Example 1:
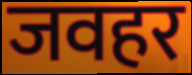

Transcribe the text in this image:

जवहर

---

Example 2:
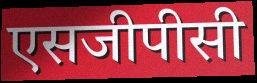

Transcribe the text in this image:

एसजीपीसी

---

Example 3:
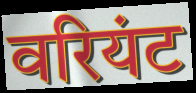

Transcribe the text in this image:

वरियंट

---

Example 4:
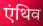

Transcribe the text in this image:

एंथिव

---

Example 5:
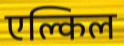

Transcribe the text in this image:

एल्किल